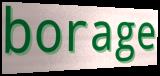
borage